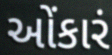
ઓંકારં